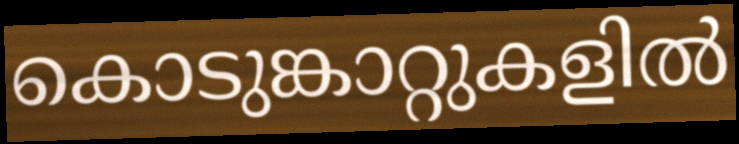
കൊടുങ്കാറ്റുകളിൽ